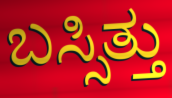
ಬಸ್ಸಿತ್ತು